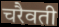
चरैवती